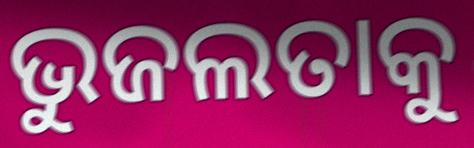
ଭୁଜଲତାକୁ